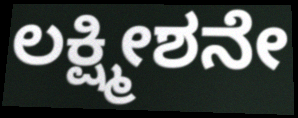
ಲಕ್ಷ್ಮೀಶನೇ